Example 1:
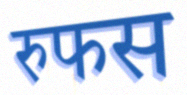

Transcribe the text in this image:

रुफस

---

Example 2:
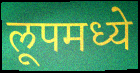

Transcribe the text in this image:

लूपमध्ये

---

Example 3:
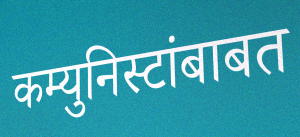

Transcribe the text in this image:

कम्युनिस्टांबाबत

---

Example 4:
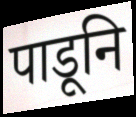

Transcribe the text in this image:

पाडूनि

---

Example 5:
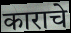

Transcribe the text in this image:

काराचे